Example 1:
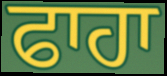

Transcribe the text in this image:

ਫਾਹਾ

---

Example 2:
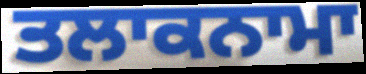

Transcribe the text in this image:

ਤਲਾਕਨਾਮਾ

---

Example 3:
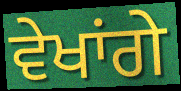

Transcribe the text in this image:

ਵੇਖਾਂਗੇ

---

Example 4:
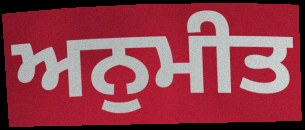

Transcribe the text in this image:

ਅਨੁਮੀਤ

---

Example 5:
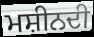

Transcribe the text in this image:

ਮਸ਼ੀਨਦੀ